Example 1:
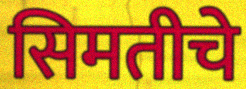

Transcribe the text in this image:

सिमतीचे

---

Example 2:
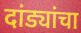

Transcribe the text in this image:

दांड्यांचा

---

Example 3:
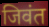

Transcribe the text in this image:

जिवंत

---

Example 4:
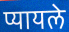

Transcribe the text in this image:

प्यायले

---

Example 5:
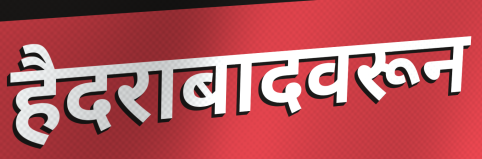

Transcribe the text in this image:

हैदराबादवरून